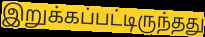
இறுக்கப்பட்டிருந்தது